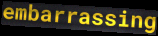
embarrassing